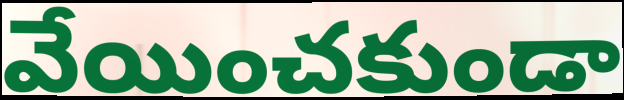
వేయించకుండా